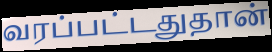
வரப்பட்டதுதான்